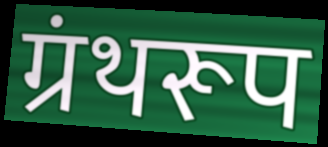
ग्रंथरूप